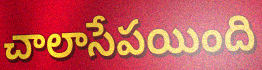
చాలాసేపయింది